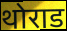
थोराड